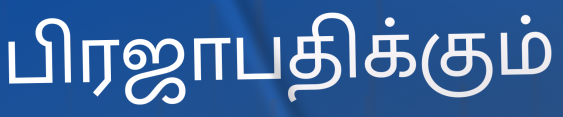
பிரஜாபதிக்கும்